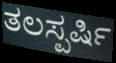
ತಲಸ್ಪರ್ಷಿ